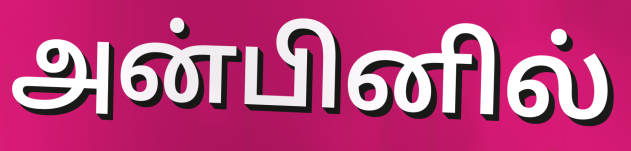
அன்பினில்